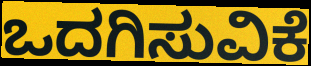
ಒದಗಿಸುವಿಕೆ